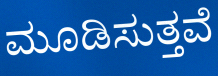
ಮೂಡಿಸುತ್ತವೆ